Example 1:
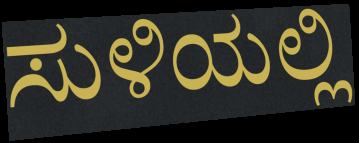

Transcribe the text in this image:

ಸುಳಿಯಲ್ಲಿ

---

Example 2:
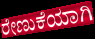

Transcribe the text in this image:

ರೇಣುಕೆಯಾಗಿ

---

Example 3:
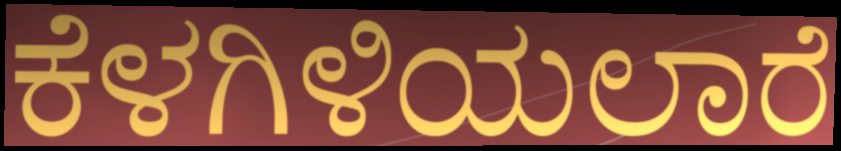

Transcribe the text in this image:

ಕೆಳಗಿಳಿಯಲಾರೆ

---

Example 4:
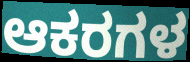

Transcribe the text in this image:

ಆಕರಗಳ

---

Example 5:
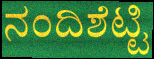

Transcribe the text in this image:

ನಂದಿಶೆಟ್ಟಿ